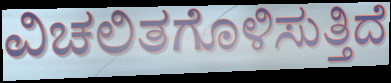
ವಿಚಲಿತಗೊಳಿಸುತ್ತಿದೆ